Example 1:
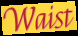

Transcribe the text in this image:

Waist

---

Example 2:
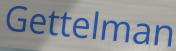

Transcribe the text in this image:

Gettelman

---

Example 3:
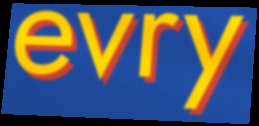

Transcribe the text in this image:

evry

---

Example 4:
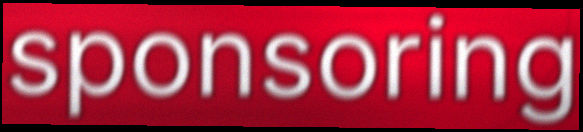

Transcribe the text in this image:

sponsoring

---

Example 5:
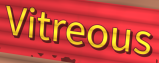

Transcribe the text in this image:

Vitreous